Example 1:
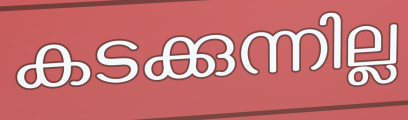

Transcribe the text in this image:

കടക്കുന്നില്ല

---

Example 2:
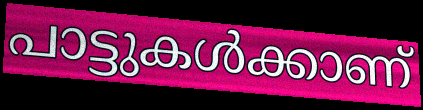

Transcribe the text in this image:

പാട്ടുകൾക്കാണ്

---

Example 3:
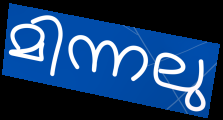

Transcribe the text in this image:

മിന്നലു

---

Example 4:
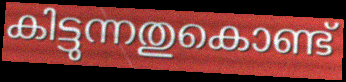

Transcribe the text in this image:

കിട്ടുന്നതുകൊണ്ട്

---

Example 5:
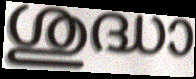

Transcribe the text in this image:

ശുദ്ധാ